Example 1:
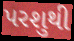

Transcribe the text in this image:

પરશુથી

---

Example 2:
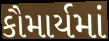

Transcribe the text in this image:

કૌમાર્યમાં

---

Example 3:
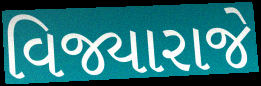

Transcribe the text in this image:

વિજ્યારાજે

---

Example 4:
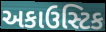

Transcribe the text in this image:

અકાઉસ્ટિક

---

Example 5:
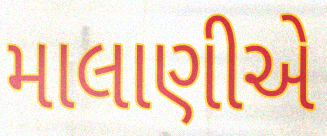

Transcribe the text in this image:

માલાણીએ